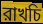
রাখচি